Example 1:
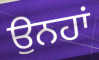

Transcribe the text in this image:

ਉਨਹਾਂ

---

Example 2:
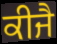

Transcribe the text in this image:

ਕੀਜੈ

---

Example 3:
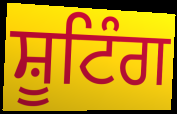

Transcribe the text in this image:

ਸ਼ੂਟਿੰਗ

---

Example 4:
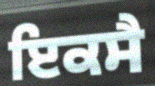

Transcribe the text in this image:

ਇਕਸੈ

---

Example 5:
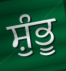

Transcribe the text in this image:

ਸ਼ੁੰਭੂ